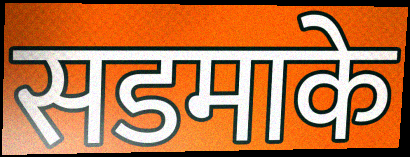
सडमाके